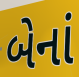
બેનાં